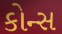
કોન્સ